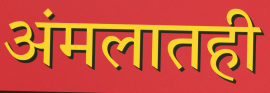
अंमलातही